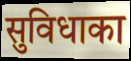
सुविधाका